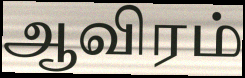
ஆவிரம்